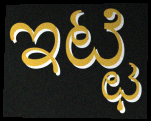
ಇಟ್ಟೆ